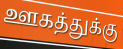
ஊகத்துக்கு